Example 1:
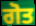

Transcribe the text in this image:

ਗੋਤ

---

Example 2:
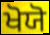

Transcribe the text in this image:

ਖੋਯੋ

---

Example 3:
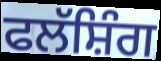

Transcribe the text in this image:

ਫਲੱਸ਼ਿੰਗ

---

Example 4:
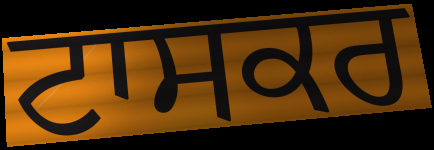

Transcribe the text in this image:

ਟਾਸਕਰ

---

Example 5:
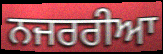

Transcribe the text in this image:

ਨਜਰਰੀਆ